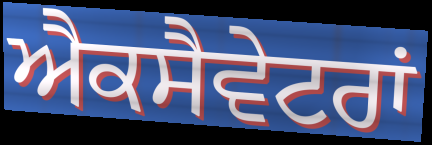
ਐਕਸੈਵੇਟਰਾਂ